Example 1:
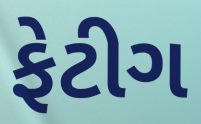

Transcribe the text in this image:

ફેટીગ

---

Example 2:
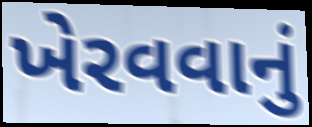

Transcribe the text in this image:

ખેરવવાનું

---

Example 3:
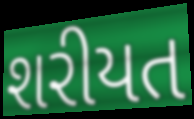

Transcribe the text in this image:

શરીયત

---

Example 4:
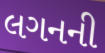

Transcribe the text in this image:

લગનની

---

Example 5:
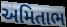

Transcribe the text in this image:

અમિતાભ